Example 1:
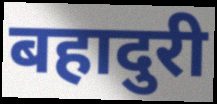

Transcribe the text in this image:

बहादुरी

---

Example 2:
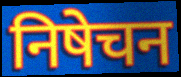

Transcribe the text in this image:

निषेचन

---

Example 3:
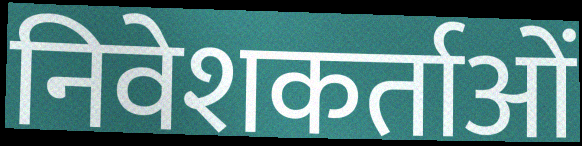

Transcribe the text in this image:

निवेशकर्ताओं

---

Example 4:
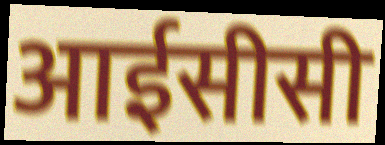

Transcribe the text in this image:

आईसीसी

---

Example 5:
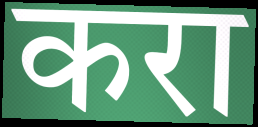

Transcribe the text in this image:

करा